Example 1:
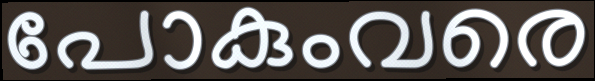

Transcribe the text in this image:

പോകുംവരെ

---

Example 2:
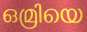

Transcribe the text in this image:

ഒമ്രിയെ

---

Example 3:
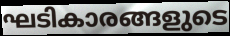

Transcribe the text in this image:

ഘടികാരങ്ങളുടെ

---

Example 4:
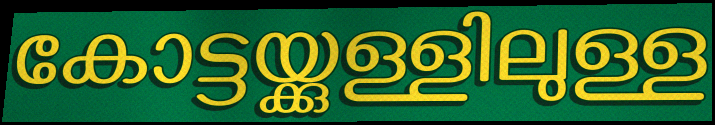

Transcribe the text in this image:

കോട്ടയ്ക്കുള്ളിലുള്ള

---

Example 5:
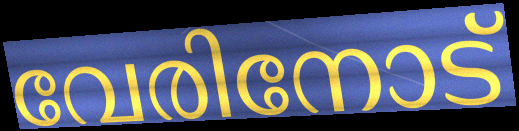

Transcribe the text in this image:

വേരിനോട്